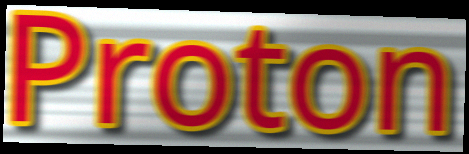
Proton